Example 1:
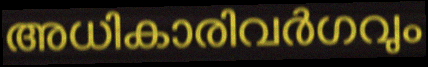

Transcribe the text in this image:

അധികാരിവർഗവും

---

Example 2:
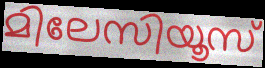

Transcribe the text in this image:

മിലേസിയൂസ്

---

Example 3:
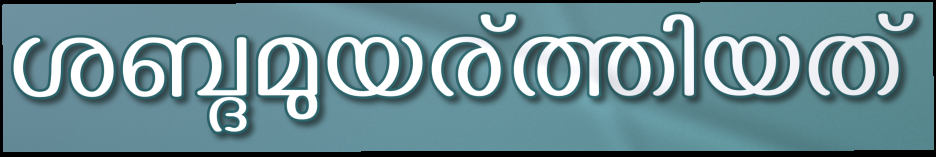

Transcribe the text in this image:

ശബ്ദമുയര്ത്തിയത്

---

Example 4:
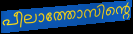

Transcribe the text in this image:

പീലാത്തോസിന്റെ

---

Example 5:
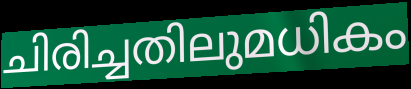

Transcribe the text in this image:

ചിരിച്ചതിലുമധികം